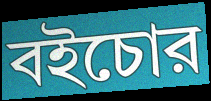
বইচোর